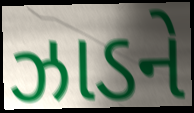
ઝાડને